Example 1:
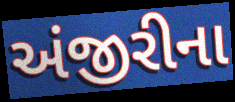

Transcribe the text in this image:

અંજીરીના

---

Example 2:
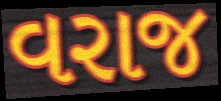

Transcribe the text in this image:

વરાજ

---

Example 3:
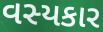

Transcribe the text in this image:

વસ્યકાર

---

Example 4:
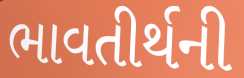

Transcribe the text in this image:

ભાવતીર્થની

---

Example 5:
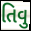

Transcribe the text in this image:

તિવુ